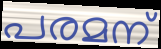
പരമന്